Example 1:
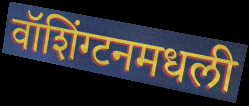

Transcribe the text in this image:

वॉशिंग्टनमधली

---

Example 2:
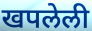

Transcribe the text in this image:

खपलेली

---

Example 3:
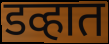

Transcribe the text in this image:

डव्हात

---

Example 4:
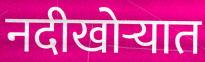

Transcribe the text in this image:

नदीखोर्‍यात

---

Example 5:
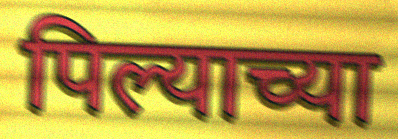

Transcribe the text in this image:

पिल्याच्या